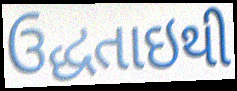
ઉદ્ધતાઇથી